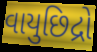
વાયુછિદ્રો